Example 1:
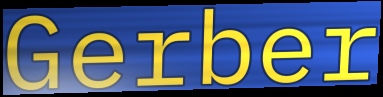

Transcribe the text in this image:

Gerber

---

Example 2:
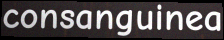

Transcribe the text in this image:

consanguinea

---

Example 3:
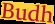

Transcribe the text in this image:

Budh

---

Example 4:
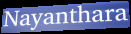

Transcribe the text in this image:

Nayanthara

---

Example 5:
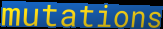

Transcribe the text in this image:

mutations